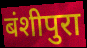
बंशीपुरा